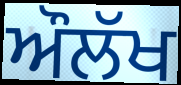
ਔਲੱਖ